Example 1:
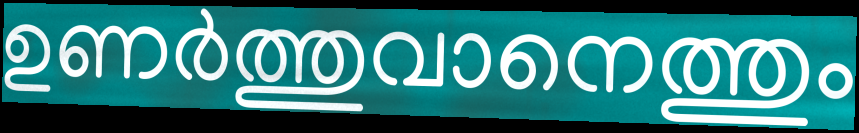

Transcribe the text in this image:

ഉണർത്തുവാനെത്തും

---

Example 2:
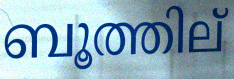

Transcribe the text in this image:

ബൂത്തില്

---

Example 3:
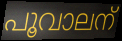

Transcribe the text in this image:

പൂവാലന്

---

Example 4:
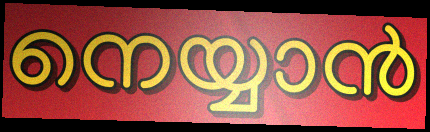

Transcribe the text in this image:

നെയ്യാൻ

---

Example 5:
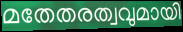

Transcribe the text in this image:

മതേതരത്വവുമായി